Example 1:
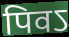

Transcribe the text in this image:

पिवऽ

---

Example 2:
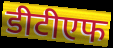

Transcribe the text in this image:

डीटीएफ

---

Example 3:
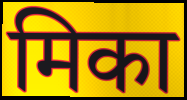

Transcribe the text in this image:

मिका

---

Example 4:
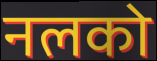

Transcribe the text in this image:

नलको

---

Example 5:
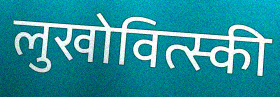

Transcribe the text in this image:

लुखोवित्स्की